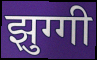
झुग्गी